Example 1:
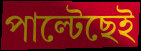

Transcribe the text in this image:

পাল্টেছেই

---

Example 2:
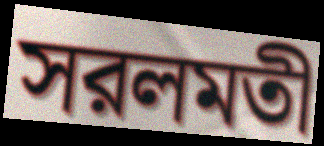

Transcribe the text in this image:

সরলমতী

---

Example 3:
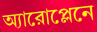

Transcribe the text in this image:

অ্যারোপ্লেনে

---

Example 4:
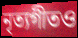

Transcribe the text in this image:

নৃত্যগীতও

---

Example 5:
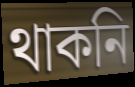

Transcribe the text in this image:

থাকনি